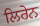
ਲਿਰੇਨ